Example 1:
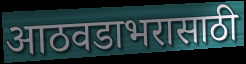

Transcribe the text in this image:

आठवडाभरासाठी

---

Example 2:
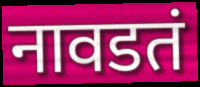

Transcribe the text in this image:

नावडतं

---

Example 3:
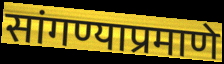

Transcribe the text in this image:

सांगण्याप्रमाणे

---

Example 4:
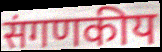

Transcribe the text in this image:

संगणकीय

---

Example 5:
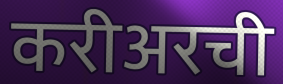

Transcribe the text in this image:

करीअरची